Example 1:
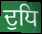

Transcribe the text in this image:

ਦੁਧਿ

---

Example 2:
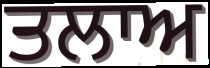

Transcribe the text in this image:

ਤਲਾਅ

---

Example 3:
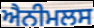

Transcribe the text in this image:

ਐਨੀਮਲਸ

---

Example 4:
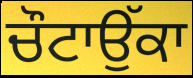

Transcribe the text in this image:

ਚੌਟਾਉੱਕਾ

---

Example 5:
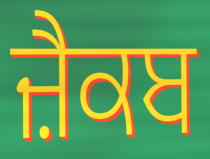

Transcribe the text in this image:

ਜ਼ੈਕਬ